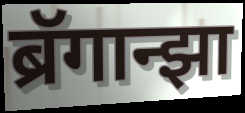
ब्रॅगान्झा